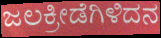
ಜಲಕ್ರೀಡೆಗಿಳಿದನ